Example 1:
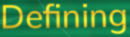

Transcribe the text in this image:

Defining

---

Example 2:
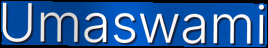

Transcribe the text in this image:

Umaswami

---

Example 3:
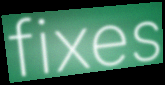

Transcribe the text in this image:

fixes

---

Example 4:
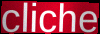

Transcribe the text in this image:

cliche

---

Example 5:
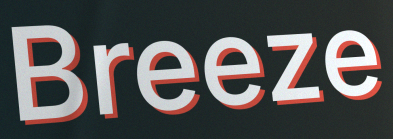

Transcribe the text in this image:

Breeze